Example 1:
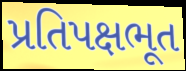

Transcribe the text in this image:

પ્રતિપક્ષભૂત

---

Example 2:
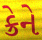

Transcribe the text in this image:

ક્રેને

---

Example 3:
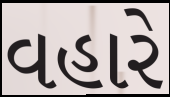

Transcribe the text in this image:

વહારે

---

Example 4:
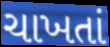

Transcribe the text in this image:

ચાખતાં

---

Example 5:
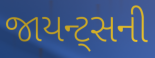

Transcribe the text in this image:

જાયન્ટ્સની